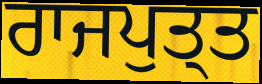
ਰਾਜਪੁਤ੍ਤ